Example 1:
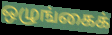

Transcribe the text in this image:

ஒழுங்கைக்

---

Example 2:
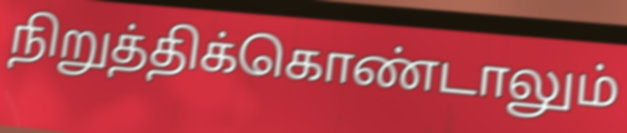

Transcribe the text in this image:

நிறுத்திக்கொண்டாலும்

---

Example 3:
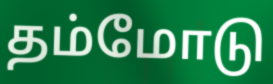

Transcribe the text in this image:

தம்மோடு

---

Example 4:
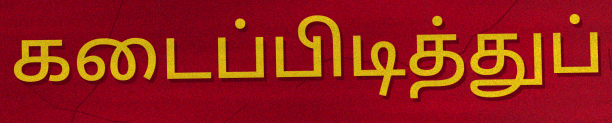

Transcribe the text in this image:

கடைப்பிடித்துப்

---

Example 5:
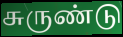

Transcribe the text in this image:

சுருண்டு